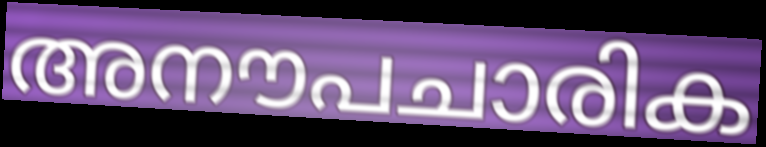
അനൗപചാരിക